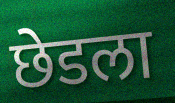
छेडला